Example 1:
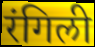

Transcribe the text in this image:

रंगिली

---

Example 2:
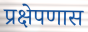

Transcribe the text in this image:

प्रक्षेपणास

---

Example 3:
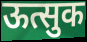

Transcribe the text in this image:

ऊत्सुक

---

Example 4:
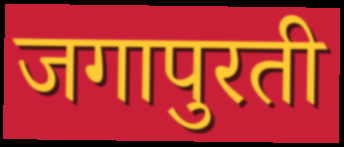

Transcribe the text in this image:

जगापुरती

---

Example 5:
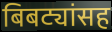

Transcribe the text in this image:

बिबट्यांसह